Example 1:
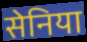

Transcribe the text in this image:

सेनिया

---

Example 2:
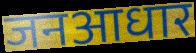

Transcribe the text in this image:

जनआधार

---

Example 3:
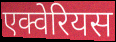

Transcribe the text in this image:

एक्वेरियस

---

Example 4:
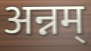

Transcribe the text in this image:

अन्नम्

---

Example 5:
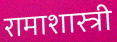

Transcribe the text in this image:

रामाशास्त्री